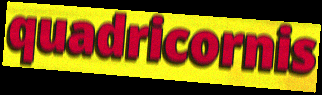
quadricornis